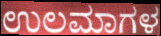
ಉಲಮಾಗಳ